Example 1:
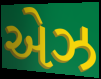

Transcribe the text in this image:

એઝ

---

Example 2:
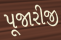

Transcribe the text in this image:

પૂજારીજી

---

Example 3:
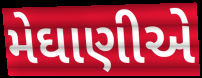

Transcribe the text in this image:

મેઘાણીએ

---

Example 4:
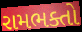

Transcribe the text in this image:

રામભક્તો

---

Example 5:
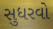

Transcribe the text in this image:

સુધરવો